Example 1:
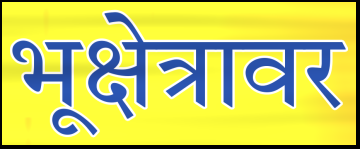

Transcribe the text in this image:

भूक्षेत्रावर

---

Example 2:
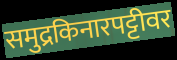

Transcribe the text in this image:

समुद्रकिनारपट्टीवर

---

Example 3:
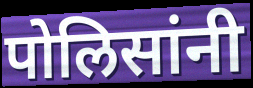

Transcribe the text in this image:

पोलिसांनी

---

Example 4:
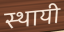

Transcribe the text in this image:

स्थायी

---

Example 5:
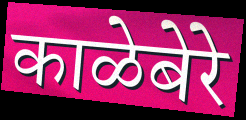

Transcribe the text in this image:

काळेबेरे